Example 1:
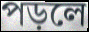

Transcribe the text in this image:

পড়লে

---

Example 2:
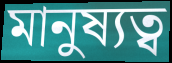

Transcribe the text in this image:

মানুষ্যত্ব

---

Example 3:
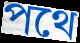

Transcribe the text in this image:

পথে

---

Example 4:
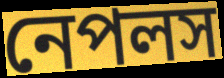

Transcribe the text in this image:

নেপলস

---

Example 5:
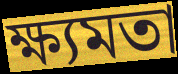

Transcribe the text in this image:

ক্ষ্যমতা